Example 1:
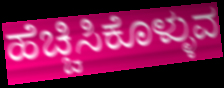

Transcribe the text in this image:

ಹೆಚ್ಚಿಸಿಕೊಳ್ಳುವ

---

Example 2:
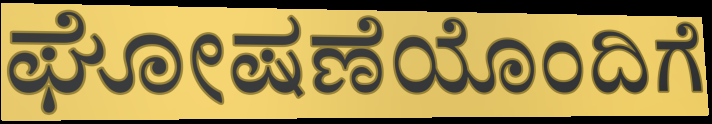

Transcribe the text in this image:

ಘೋಷಣೆಯೊಂದಿಗೆ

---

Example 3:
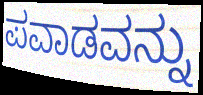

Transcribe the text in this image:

ಪವಾಡವನ್ನು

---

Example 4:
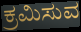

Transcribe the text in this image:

ಕ್ರಮಿಸುವ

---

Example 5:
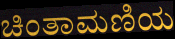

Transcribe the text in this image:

ಚಿಂತಾಮಣಿಯ